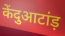
केंदुआटांड़